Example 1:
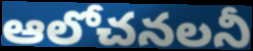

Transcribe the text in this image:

ఆలోచనలనీ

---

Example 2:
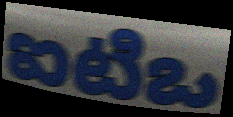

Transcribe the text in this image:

ఐటిఒ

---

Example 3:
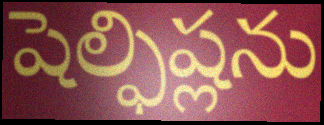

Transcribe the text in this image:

షెల్ఫిష్లను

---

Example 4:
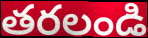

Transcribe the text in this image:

తరలండి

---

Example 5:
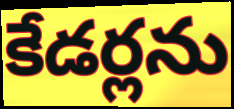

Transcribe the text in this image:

కేడర్లను